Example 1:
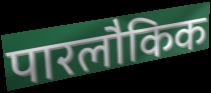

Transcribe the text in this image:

पारलौकिक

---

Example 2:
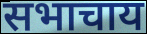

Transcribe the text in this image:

सभाचाय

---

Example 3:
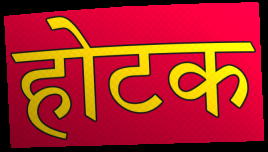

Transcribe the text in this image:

होटक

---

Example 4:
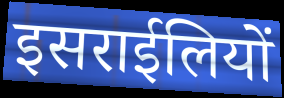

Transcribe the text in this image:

इसराईलियों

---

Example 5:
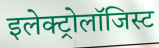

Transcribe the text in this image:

इलेक्ट्रोलॉजिस्ट